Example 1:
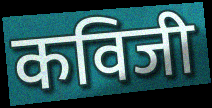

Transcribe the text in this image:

कविजी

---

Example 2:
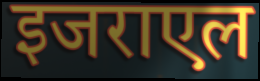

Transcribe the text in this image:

इजराएल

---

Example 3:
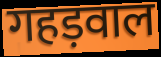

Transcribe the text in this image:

गहड़वाल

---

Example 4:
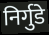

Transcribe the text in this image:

निर्गुडे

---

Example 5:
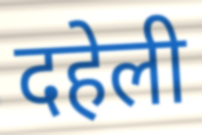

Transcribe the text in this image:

दहेली